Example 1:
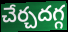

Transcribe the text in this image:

చేర్చదగ్గ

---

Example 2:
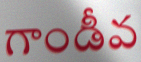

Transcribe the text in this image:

గాండీవ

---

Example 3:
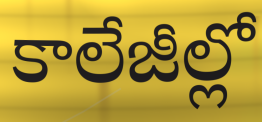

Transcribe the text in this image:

కాలేజీల్లో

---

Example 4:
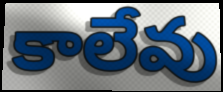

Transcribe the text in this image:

కాలేవు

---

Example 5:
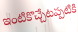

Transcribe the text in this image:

ఇంటికొచ్చేటప్పటికి